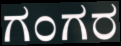
ಗಂಗರ